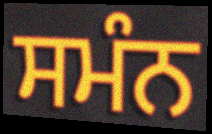
ਸਮੰਨ